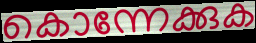
കൊന്നേക്കുക